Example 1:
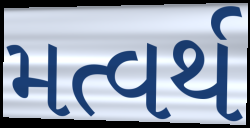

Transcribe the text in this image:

મત્વર્થ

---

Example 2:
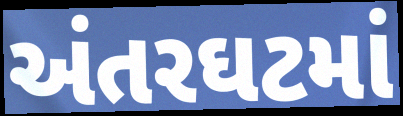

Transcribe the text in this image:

અંતરઘટમાં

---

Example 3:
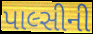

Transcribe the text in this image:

પાલ્સીની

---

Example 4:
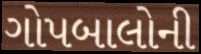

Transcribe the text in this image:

ગોપબાલોની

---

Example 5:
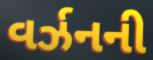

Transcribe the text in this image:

વર્ઝનની